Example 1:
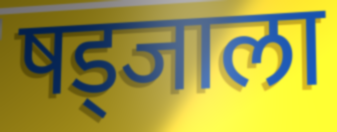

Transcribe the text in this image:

षड्जाला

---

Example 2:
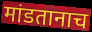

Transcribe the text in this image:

मांडतानाच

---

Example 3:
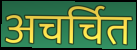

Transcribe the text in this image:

अचर्चित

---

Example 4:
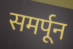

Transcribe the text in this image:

समर्पून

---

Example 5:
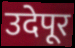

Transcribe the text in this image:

उदेपूर